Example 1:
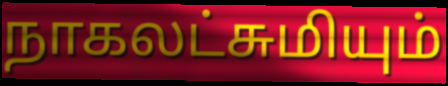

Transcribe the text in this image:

நாகலட்சுமியும்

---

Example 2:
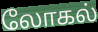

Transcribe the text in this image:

லோகல்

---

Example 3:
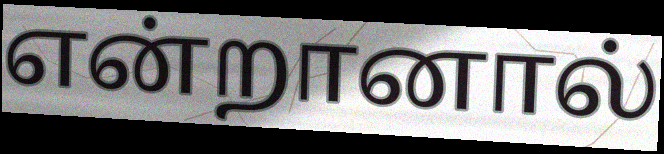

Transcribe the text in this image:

என்றானால்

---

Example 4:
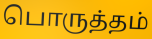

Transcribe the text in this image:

பொருத்தம்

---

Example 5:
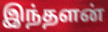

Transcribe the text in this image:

இந்தளன்